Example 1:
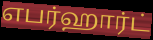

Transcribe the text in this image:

எபர்ஹார்ட்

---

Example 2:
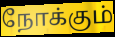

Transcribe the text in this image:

நோக்கும்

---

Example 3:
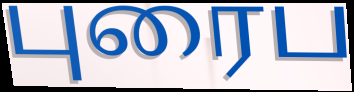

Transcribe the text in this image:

புரைப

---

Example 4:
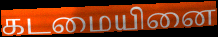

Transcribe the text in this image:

கடமையினை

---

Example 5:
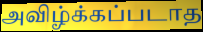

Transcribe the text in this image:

அவிழ்க்கப்படாத